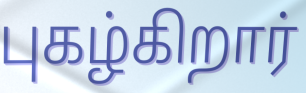
புகழ்கிறார்